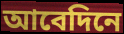
আবেদিনে